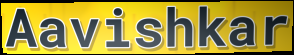
Aavishkar